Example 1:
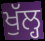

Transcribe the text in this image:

ਖੁੱਲ੍ਹ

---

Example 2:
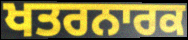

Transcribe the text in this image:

ਖਤਰਨਾਰਕ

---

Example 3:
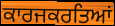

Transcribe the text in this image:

ਕਾਰਜਕਰਤਿਆਂ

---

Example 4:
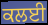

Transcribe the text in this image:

ਕਲਈ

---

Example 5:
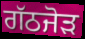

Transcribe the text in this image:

ਗੱਠਜੋੜ